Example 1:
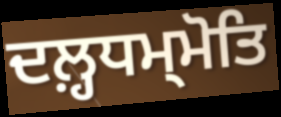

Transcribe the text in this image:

ਦਲ਼੍ਹਧਮ੍ਮੋਤਿ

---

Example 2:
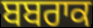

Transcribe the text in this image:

ਬਬਰਾਕ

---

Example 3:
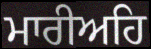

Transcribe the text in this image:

ਮਾਰੀਅਹਿ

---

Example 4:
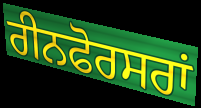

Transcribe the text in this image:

ਰੀਨਫੋਰਸਰਾਂ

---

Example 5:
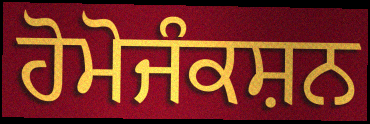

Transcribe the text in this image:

ਹੋਮੋਜੰਕਸ਼ਨ